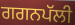
ਗਗਨਪੱਲੀ